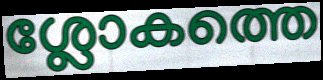
ശ്ലോകത്തെ